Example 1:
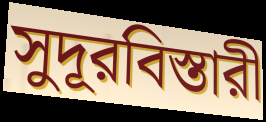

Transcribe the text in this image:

সুদূরবিস্তারী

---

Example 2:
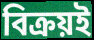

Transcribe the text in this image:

বিক্রয়ই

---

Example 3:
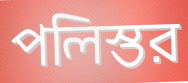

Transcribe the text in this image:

পলিস্তর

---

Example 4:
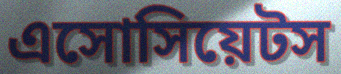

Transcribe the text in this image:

এসোসিয়েটস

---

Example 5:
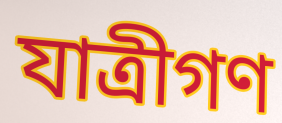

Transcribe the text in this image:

যাত্রীগণ